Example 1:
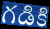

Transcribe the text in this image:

గడికి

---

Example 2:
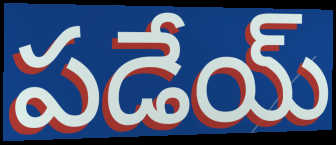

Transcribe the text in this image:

పడేయ్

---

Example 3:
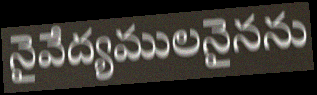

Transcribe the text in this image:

నైవేద్యములనైనను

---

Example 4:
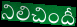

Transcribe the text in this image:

నిలిచిందీ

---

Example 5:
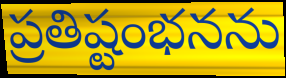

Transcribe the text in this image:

ప్రతిష్టంభనను